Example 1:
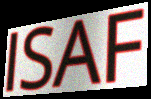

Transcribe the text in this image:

ISAF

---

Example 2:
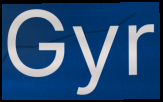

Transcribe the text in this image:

Gyr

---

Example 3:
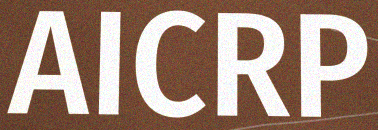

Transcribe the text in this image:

AICRP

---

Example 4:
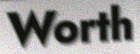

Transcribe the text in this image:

Worth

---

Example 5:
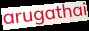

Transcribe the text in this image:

arugathai